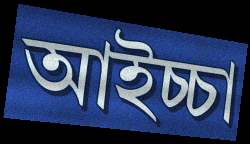
আইচ্চা